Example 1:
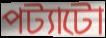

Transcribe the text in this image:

পট্যাটো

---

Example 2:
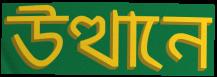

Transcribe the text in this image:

উত্থানে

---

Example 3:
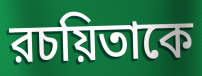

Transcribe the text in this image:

রচয়িতাকে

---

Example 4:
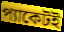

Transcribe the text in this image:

প্যাকেটই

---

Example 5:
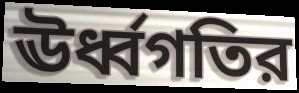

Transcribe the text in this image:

ঊর্ধ্বগতির